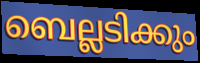
ബെല്ലടിക്കും